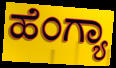
ಹೆಂಗ್ಯಾ